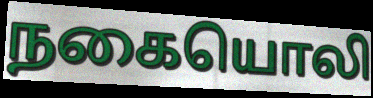
நகையொலி